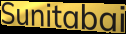
Sunitabai